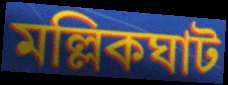
মল্লিকঘাট